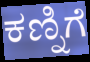
ಕಣ್ನಿಗೆ